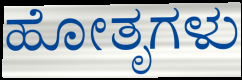
ಹೋತೃಗಳು